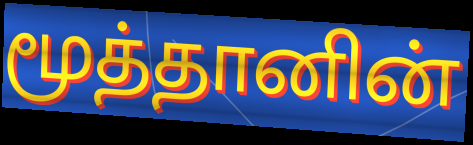
மூத்தானின்